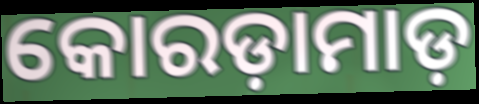
କୋରଡ଼ାମାଡ଼